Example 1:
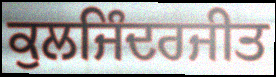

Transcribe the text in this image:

ਕੁਲਜਿੰਦਰਜੀਤ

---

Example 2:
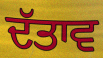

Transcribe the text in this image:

ਦੱਤਾਵ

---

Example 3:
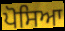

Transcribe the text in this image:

ਪੋਸਿਆ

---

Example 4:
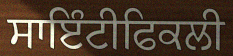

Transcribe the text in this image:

ਸਾਇੰਟੀਫਿਕਲੀ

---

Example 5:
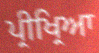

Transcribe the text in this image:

ਪ੍ਰੀਖ੍ਰਿਆ